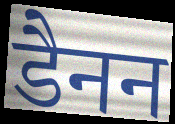
डैनन